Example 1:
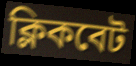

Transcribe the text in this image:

ক্লিকবেট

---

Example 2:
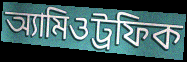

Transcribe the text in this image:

অ্যামিওট্রফিক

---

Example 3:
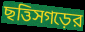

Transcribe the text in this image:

ছত্তিসগড়ের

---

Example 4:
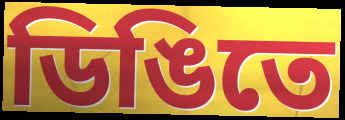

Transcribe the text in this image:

ডিঙিতে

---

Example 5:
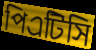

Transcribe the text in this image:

পিএটিসি